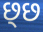
છ્છ